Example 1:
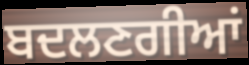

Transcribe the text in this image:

ਬਦਲਣਗੀਆਂ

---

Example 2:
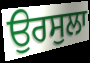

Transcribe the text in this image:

ਉਰਸੁਲਾ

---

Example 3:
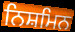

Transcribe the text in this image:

ਨਿਸ਼ਮਿਨ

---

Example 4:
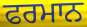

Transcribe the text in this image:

ਫਰਮਾਨ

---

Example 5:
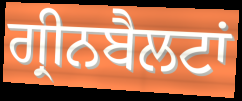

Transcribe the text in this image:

ਗ੍ਰੀਨਬੈਲਟਾਂ